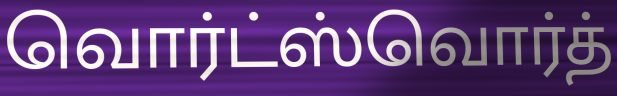
வொர்ட்ஸ்வொர்த்